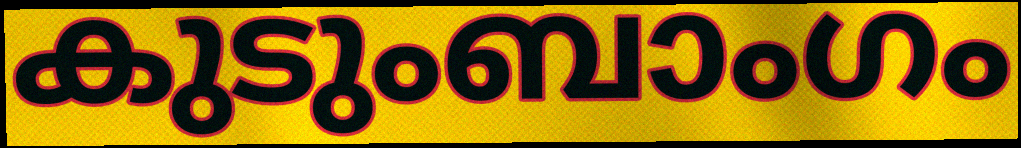
കുടുംബാംഗം